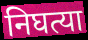
निघत्या